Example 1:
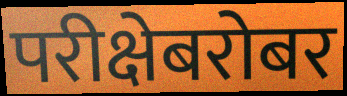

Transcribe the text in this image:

परीक्षेबरोबर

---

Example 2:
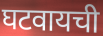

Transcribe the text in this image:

घटवायची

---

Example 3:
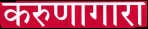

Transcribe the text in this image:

करुणागारा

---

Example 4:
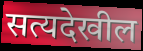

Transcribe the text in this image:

सत्यदेखील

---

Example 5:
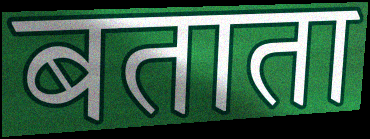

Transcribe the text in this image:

बताता